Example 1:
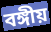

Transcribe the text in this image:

বঙ্গীয়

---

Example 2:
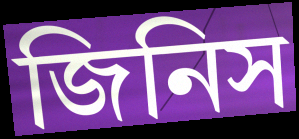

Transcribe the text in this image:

জিনিস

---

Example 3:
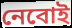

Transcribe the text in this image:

নেবোই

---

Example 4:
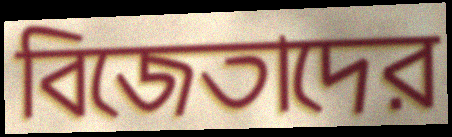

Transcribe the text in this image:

বিজেতাদের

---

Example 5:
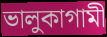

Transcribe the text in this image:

ভালুকাগামী